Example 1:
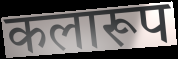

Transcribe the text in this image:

कलारूप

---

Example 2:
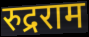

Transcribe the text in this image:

रुद्रराम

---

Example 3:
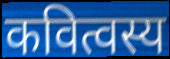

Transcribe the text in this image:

कवित्वस्य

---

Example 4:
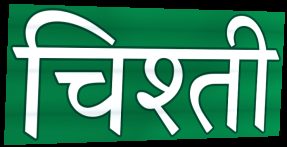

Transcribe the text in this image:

चिश्ती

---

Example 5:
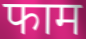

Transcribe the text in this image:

फाम